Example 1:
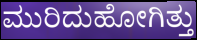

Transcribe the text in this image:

ಮುರಿದುಹೋಗಿತ್ತು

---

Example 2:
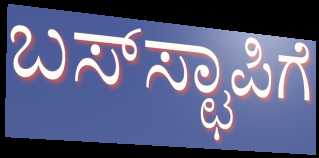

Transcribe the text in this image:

ಬಸ್‌ಸ್ಟಾಪಿಗೆ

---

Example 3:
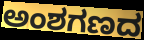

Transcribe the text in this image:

ಅಂಶಗಣದ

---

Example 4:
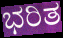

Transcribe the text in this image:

ಭರಿತ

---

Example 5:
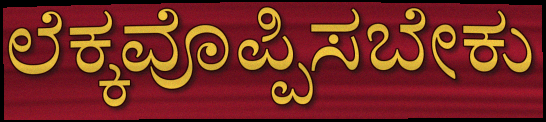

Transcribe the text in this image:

ಲೆಕ್ಕವೊಪ್ಪಿಸಬೇಕು